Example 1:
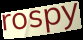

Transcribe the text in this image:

rospy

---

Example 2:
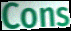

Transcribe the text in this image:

Cons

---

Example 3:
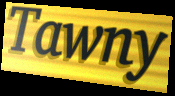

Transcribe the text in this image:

Tawny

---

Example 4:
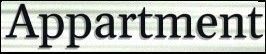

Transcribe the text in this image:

Appartment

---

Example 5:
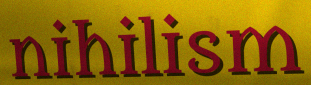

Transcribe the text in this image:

nihilism